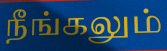
நீங்கலும்